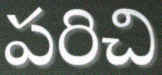
పరిచి